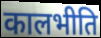
कालभीति